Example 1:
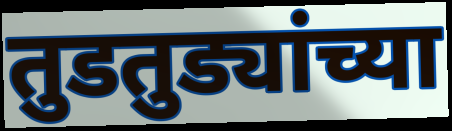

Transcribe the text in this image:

तुडतुड्यांच्या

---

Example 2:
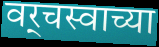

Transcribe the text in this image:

वर्चस्वाच्या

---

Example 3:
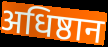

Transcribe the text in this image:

अधिष्ठान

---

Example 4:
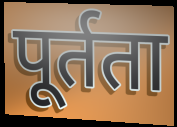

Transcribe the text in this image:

पूर्तता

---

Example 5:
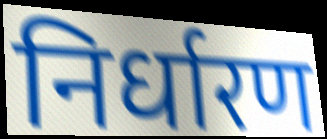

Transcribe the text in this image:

निर्धारण